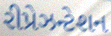
રીપ્રેઝન્ટેશન